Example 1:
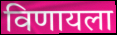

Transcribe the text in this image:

विणायला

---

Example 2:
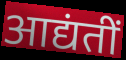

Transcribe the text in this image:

आद्यंतीं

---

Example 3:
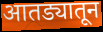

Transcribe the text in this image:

आतड्यातून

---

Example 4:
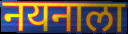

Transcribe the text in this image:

नयनाला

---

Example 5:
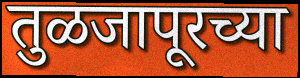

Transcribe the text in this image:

तुळजापूरच्या